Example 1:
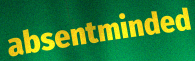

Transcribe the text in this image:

absentminded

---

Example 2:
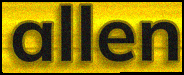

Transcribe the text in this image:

allen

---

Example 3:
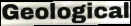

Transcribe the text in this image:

Geological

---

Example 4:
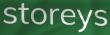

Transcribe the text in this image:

storeys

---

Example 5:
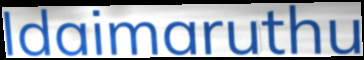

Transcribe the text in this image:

Idaimaruthu